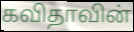
கவிதாவின்